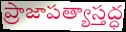
ప్రాజాపత్యాస్తద్ధ